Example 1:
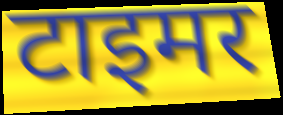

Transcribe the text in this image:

टाइमर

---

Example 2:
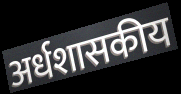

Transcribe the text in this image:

अर्धशासकीय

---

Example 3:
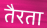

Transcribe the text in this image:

तैरता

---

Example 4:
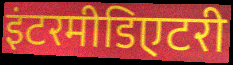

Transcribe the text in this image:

इंटरमीडिएटरी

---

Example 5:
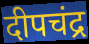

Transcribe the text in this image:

दीपचंद्र